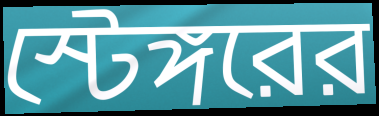
স্টেঙ্গরের